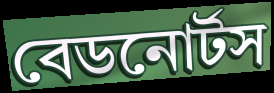
বেডনোর্টস